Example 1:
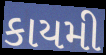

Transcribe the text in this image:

કાયમી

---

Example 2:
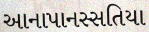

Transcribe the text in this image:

આનાપાનસ્સતિયા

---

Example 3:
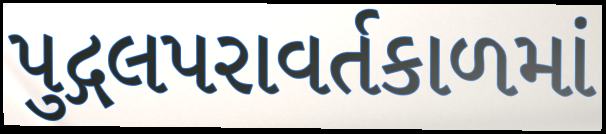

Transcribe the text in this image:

પુદ્ગલપરાવર્તકાળમાં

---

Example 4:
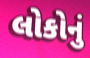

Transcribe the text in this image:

લોકોનું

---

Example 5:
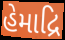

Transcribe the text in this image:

હેમાદ્રિ